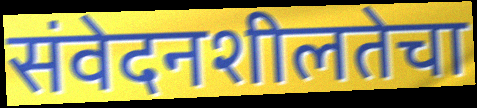
संवेदनशीलतेचा